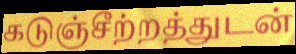
கடுஞ்சீற்றத்துடன்